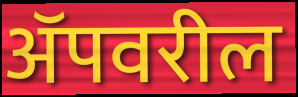
ॲपवरील